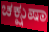
ಚಕ್ಷುಷಾ